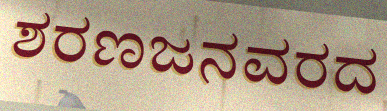
ಶರಣಜನವರದ